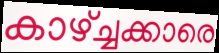
കാഴ്ച്ചക്കാരെ